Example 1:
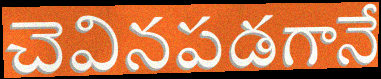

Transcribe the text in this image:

చెవినపడగానే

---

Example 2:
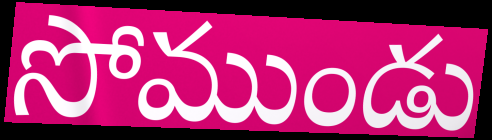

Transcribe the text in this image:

సోముండు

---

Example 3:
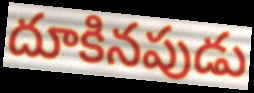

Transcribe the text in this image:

దూకినపుడు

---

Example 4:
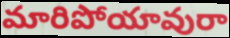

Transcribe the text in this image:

మారిపోయావురా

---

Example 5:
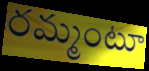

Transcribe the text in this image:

రమ్మంటూ